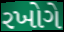
રખોગે